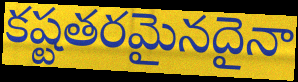
కష్టతరమైనదైనా